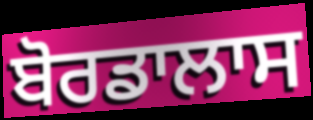
ਬੋਰਡਾਲਾਸ